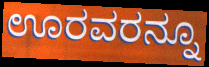
ಊರವರನ್ನೂ